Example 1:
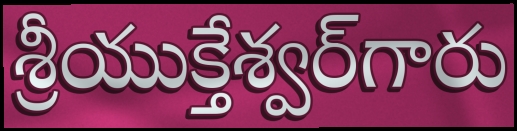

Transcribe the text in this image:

శ్రీయుక్తేశ్వర్‌గారు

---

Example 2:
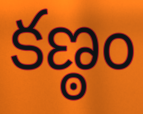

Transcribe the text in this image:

కణ్ఠం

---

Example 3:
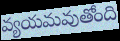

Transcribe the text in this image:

వ్యయమవుతోంది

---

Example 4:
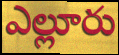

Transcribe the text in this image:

ఎల్లూరు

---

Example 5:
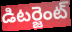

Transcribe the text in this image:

డిటర్జెంట్